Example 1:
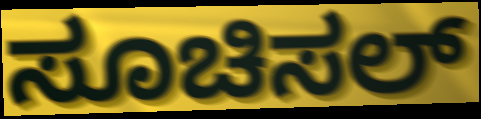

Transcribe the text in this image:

ಸೂಚಿಸಲ್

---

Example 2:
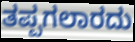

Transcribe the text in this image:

ತಪ್ಪಗಲಾರದು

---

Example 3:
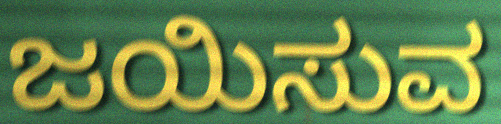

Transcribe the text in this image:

ಜಯಿಸುವ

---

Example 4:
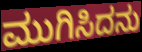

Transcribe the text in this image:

ಮುಗಿಸಿದನು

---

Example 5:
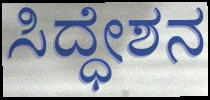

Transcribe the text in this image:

ಸಿದ್ಧೇಶನ